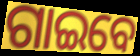
ଗାଇବେ